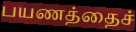
பயணத்தைச்